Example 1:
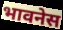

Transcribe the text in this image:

भावनेस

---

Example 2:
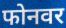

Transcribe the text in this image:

फोनवर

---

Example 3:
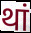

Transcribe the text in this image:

थां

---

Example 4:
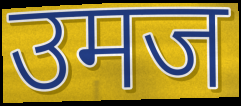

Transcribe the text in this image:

उमज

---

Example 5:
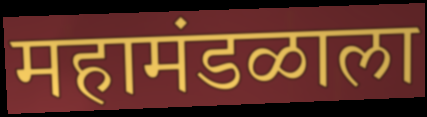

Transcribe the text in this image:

महामंडळाला